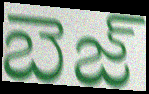
బెజ్